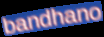
bandhano